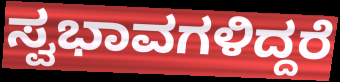
ಸ್ವಭಾವಗಳಿದ್ದರೆ